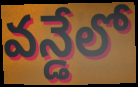
వన్డేలో